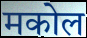
मकोल